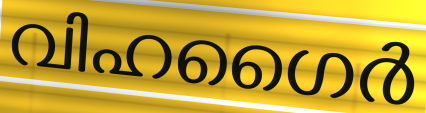
വിഹഗൈർ